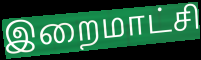
இறைமாட்சி